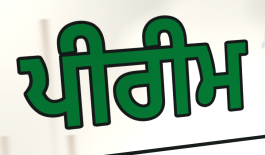
ਪੀਰੀਮ